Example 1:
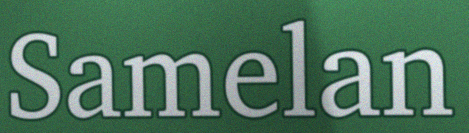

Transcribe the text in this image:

Samelan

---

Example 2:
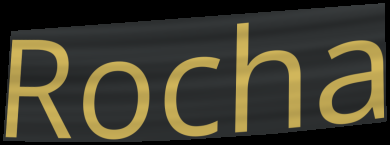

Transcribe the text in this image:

Rocha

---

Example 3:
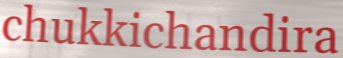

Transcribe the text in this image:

chukkichandira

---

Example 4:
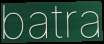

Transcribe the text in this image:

batra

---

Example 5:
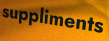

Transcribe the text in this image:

suppliments